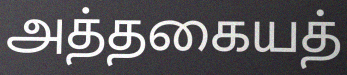
அத்தகையத்